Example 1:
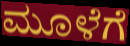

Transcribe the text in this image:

ಮೂಳೆಗೆ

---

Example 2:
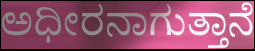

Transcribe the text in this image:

ಅಧೀರನಾಗುತ್ತಾನೆ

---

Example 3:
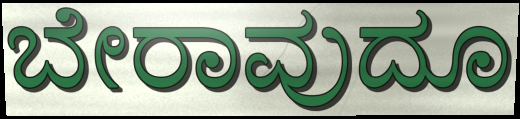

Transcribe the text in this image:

ಬೇರಾವುದೂ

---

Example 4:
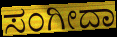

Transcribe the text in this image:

ಸಂಗೀದಾ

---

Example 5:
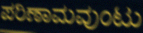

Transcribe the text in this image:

ಪರಿಣಾಮವುಂಟು